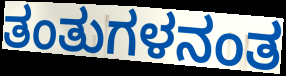
ತಂತುಗಳನಂತ